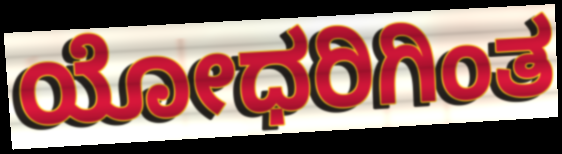
ಯೋಧರಿಗಿಂತ